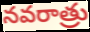
నవరాత్రు